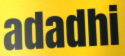
adadhi